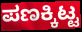
ಪಣಕ್ಕಿಟ್ಟ